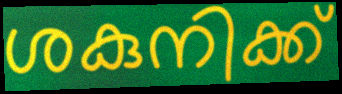
ശകുനിക്ക്